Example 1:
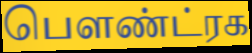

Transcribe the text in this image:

பௌண்ட்ரக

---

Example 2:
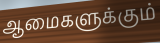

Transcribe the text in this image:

ஆமைகளுக்கும்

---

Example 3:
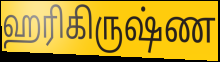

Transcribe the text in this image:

ஹரிகிருஷ்ண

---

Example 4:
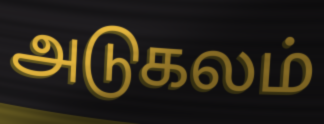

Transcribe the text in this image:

அடுகலம்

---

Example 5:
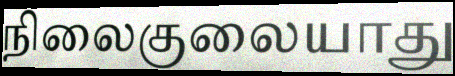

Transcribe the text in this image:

நிலைகுலையாது